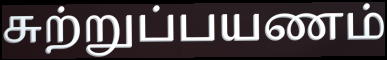
சுற்றுப்பயணம்